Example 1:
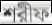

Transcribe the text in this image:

শরীফ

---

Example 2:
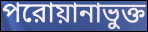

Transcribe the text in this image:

পরোয়ানাভুক্ত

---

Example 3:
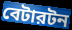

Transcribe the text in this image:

বেটারটন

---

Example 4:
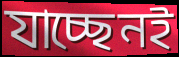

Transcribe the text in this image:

যাচ্ছেনই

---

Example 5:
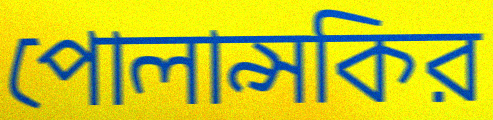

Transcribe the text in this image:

পোলান্সকির